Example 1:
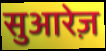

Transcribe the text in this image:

सुआरेज़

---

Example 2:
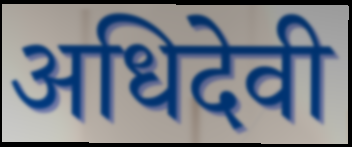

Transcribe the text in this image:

अधिदेवी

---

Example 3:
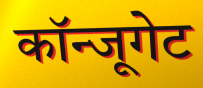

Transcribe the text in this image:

कॉन्जूगेट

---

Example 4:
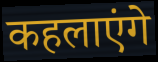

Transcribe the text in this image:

कहलाएंगे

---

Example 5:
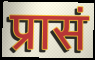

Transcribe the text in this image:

प्रासं